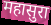
महासुरा